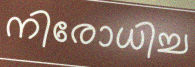
നിരോധിച്ച